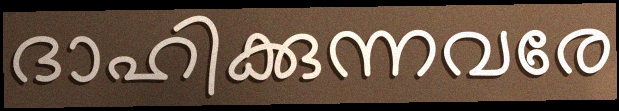
ദാഹിക്കുന്നവരേ